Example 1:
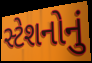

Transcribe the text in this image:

સ્ટેશનોનું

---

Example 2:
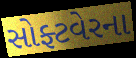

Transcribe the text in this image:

સોફ્ટવેરના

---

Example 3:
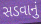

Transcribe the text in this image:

સડવાનું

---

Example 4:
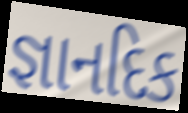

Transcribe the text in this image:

જ્ઞાનદિક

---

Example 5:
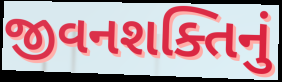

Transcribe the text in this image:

જીવનશક્તિનું